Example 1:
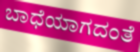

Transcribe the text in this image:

ಬಾಧೆಯಾಗದಂತೆ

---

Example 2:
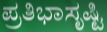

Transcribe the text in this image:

ಪ್ರತಿಭಾಸೃಷ್ಟಿ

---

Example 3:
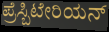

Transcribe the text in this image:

ಪ್ರೆಸ್ಬಿಟೇರಿಯನ್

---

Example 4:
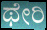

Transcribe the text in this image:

ಥೇರಿ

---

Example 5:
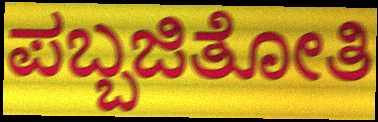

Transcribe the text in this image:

ಪಬ್ಬಜಿತೋತಿ